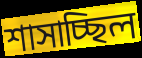
শাসাচ্ছিল